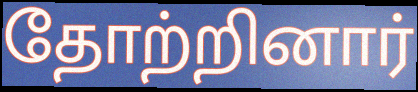
தோற்றினார்